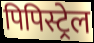
पिपिस्ट्रेल